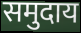
समुदाय